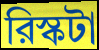
রিস্কটা